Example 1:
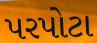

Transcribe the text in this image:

પરપોટા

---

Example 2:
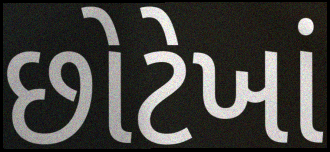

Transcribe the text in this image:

છોટેખાં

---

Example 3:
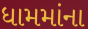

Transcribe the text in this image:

ધામમાંના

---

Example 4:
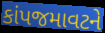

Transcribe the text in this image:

કાંપજમાવટને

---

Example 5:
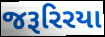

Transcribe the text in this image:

જરૂરિરયા